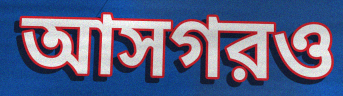
আসগরও